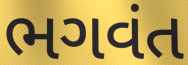
ભગવંત